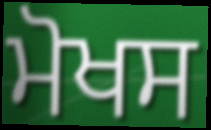
ਮੋਖਸ